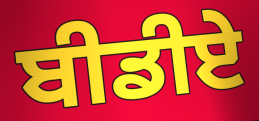
ਬੀਡੀਏ